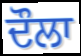
ਦੌਲਾ